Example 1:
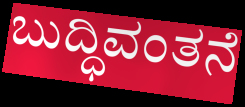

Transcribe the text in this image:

ಬುದ್ಧಿವಂತನೆ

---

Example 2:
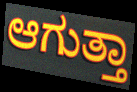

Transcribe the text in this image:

ಆಗುತ್ತಾ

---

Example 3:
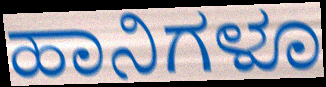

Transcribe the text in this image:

ಹಾನಿಗಳೂ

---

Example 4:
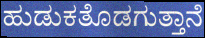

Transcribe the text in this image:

ಹುಡುಕತೊಡಗುತ್ತಾನೆ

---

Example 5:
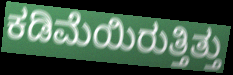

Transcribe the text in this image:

ಕಡಿಮೆಯಿರುತ್ತಿತ್ತು